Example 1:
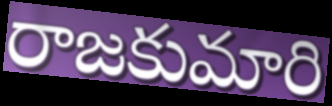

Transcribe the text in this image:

రాజకుమారి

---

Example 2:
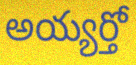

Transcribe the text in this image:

అయ్యర్తో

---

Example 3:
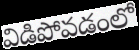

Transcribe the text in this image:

విడిపోవడంలో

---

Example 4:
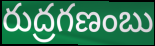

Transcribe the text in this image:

రుద్రగణంబు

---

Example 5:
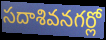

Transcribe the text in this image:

సదాశివనగర్లో